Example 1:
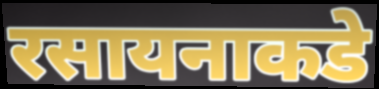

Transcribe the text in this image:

रसायनाकडे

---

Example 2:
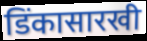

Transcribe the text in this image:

डिंकासारखी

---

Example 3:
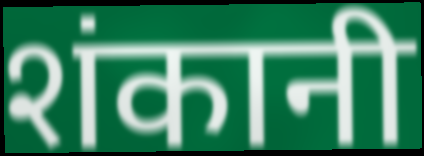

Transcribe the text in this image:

शंकानी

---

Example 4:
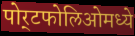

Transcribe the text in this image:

पोर्टफोलिओमध्ये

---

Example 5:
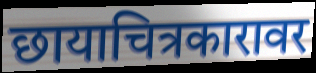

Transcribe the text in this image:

छायाचित्रकारावर